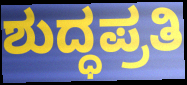
ಶುದ್ಧಪ್ರತಿ